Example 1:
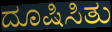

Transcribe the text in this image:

ದೂಷಿಸಿತು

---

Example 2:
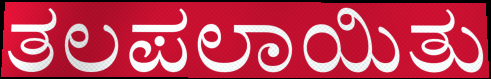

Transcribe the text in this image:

ತಲಪಲಾಯಿತು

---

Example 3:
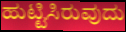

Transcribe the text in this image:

ಹುಟ್ಟಿಸಿರುವುದು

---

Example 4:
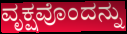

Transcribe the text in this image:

ವೃಕ್ಷವೊಂದನ್ನು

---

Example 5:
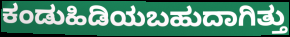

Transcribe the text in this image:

ಕಂಡುಹಿಡಿಯಬಹುದಾಗಿತ್ತು